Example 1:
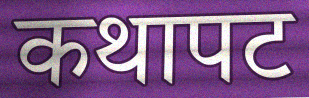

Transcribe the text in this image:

कथापट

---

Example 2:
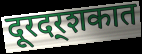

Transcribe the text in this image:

दूरदर्शकात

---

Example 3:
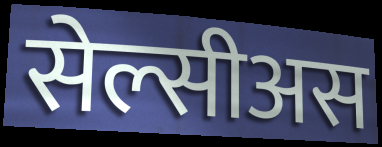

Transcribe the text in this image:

सेल्सीअस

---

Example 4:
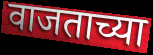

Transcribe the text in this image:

वाजताच्या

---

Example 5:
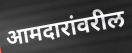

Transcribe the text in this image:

आमदारांवरील